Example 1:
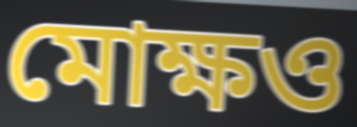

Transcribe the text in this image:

মোক্ষও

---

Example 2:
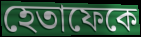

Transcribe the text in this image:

হেতাফেকে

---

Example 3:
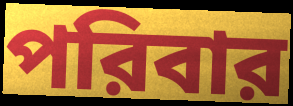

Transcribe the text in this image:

পরিবার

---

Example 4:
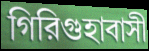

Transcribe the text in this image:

গিরিগুহাবাসী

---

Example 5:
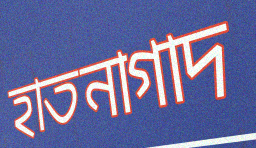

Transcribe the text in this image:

হাতনাগাদ